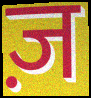
ज़